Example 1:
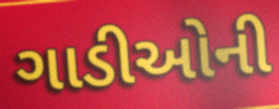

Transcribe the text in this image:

ગાડીઓની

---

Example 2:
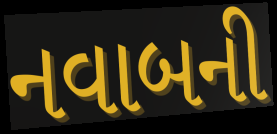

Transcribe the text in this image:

નવાબની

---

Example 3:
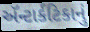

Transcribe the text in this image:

ઍન્ટાર્કટિકાનું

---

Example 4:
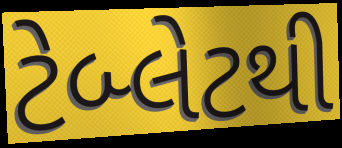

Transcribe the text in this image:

ટેબ્લેટથી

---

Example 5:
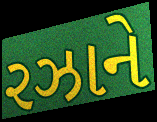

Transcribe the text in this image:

રઝાને